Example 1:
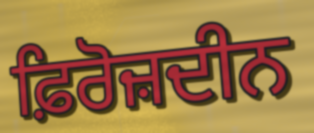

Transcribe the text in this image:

ਫ਼ਿਰੋਜ਼ਦੀਨ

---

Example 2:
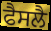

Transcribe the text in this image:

ਫੈਸਲੈ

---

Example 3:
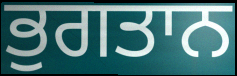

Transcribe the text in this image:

ਭੁਗਤਾਨ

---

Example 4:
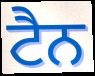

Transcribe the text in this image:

ਟੈਨ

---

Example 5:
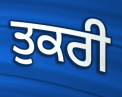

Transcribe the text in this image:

ਤੁਕਰੀ